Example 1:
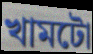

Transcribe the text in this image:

খামটো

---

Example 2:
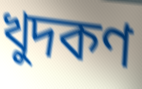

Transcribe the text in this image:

খুদকণ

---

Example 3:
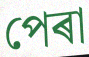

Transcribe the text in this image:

পেৰা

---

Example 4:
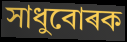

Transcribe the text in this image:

সাধুবোৰক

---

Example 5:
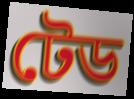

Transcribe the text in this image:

টেড